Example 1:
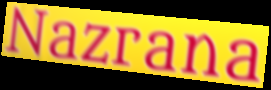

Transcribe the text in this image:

Nazrana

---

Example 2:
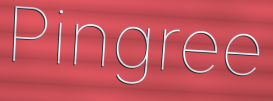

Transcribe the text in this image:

Pingree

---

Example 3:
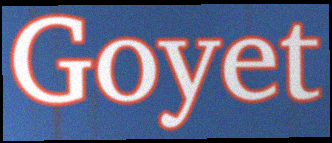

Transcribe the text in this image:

Goyet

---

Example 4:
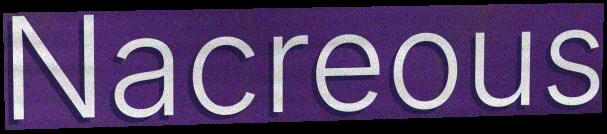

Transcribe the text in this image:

Nacreous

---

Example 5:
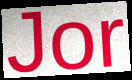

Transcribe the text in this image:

Jor